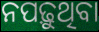
ନପଢ଼ୁଥିବା